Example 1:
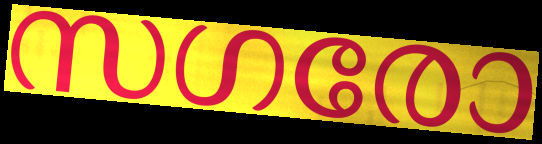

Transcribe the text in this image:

സഗരോ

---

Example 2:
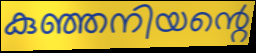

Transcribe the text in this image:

കുഞ്ഞനിയന്റെ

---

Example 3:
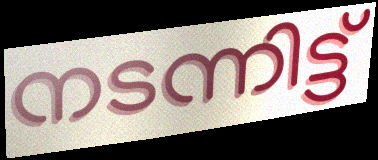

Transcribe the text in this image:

നടന്നിട്ട്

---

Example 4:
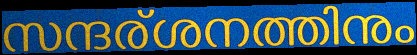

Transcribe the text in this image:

സന്ദര്ശനത്തിനും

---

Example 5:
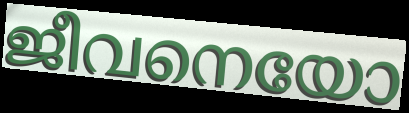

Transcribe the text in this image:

ജീവനെയോ